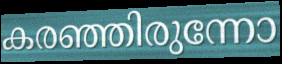
കരഞ്ഞിരുന്നോ